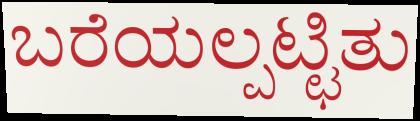
ಬರೆಯಲ್ಪಟ್ಟಿತು